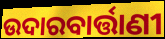
ଉଦାରବାର୍ତ୍ତାଣୀ